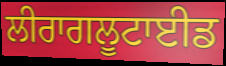
ਲੀਰਾਗਲੂਟਾਈਡ